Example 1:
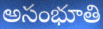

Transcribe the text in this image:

అసంభూతి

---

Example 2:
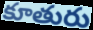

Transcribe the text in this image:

కూతురు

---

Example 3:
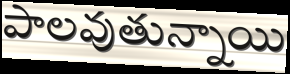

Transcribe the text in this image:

పాలవుతున్నాయి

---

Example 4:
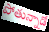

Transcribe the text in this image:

పోతున్నాడో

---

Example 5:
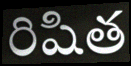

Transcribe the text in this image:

రిషిత